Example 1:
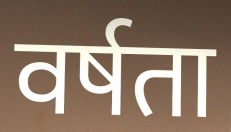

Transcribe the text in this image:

वर्षता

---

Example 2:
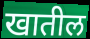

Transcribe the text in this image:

खातील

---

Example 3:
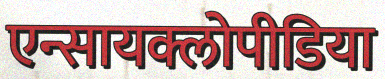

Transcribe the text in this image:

एन्सायक्लोपीडिया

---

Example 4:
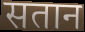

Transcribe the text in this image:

सतान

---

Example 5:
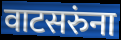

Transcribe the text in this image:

वाटसरुंना